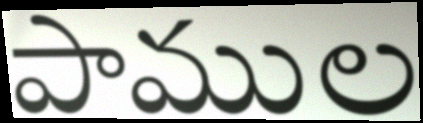
పాముల